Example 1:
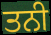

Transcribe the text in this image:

ਤਨੀ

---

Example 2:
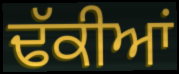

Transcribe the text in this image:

ਢੱਕੀਆਂ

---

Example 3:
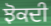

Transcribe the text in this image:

ਝੋਕਦੀ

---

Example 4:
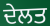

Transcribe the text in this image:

ਦੇਲਤ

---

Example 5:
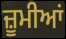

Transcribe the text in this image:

ਜ਼ੂਮੀਆਂ